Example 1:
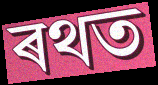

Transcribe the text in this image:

ৰথত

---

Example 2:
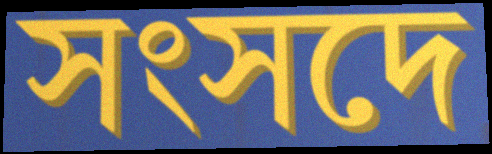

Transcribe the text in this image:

সংসদে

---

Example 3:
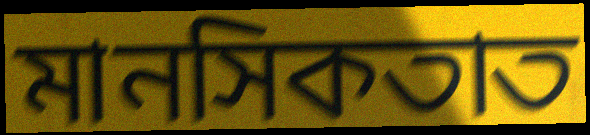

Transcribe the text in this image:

মানসিকতাত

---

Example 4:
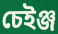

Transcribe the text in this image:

চেইঞ্জ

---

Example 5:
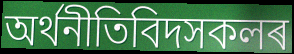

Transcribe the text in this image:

অৰ্থনীতিবিদসকলৰ